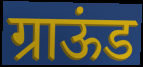
ग्राऊंड